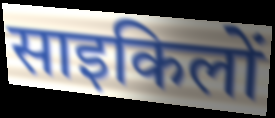
साइकिलों